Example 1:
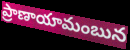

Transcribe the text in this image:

ప్రాణాయామంబున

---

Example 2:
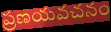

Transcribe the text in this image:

ప్రణయవచనం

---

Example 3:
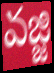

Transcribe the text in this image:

వజ్జి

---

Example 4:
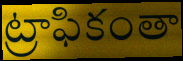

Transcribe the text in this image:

ట్రాఫికంతా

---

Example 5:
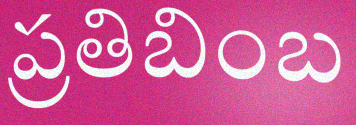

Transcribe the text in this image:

ప్రతిబింబ